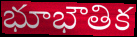
భూభౌతిక